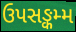
ઉપસઙ્કમ્મ